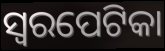
ସ୍ୱରପେଟିକା